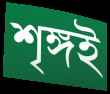
শৃঙ্গই